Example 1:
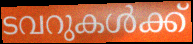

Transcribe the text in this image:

ടവറുകൾക്ക്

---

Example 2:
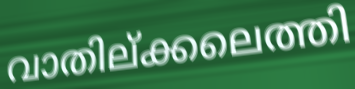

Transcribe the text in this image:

വാതില്ക്കലെത്തി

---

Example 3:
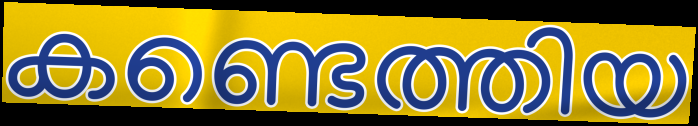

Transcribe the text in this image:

കണ്ടെത്തിയ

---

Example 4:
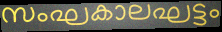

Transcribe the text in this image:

സംഘകാലഘട്ടം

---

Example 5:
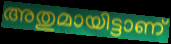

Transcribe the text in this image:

അതുമായിട്ടാണ്